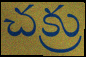
చక్రు